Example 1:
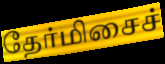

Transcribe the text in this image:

தேர்மிசைச்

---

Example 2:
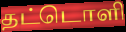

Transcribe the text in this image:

தட்டொளி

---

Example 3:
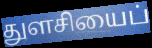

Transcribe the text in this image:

துளசியைப்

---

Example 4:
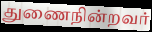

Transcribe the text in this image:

துணைநின்றவர்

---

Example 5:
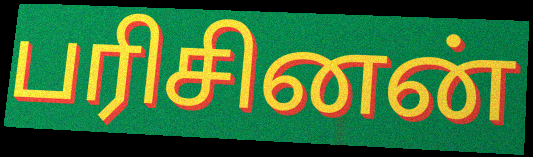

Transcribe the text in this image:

பரிசினன்